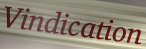
Vindication